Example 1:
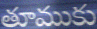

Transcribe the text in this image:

తూముకు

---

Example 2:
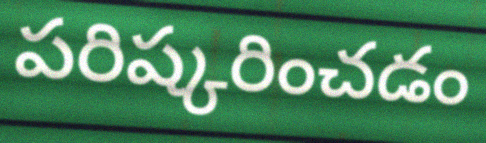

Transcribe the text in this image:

పరిష్కరించడం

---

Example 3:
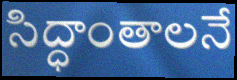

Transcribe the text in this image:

సిద్ధాంతాలనే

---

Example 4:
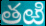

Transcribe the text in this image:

తఱి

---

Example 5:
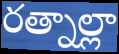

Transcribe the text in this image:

రత్నాల్లా